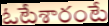
ఓటేశారంటే